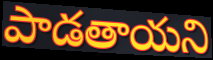
పాడతాయని